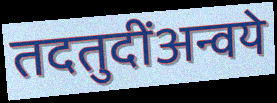
तदतुदींअन्वये